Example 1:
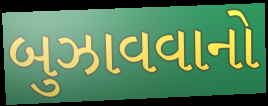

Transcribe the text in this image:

બુઝાવવાનો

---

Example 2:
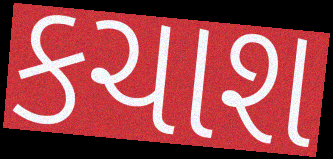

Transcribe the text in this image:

કચાશ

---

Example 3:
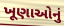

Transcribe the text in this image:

ખૂણાઓનું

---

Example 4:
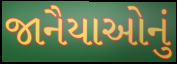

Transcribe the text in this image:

જાનૈયાઓનું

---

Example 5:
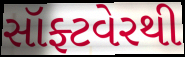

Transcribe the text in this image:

સૉફ્ટવેરથી